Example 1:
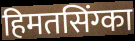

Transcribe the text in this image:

हिमतसिंग्का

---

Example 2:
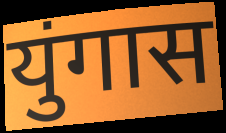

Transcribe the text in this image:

युंगास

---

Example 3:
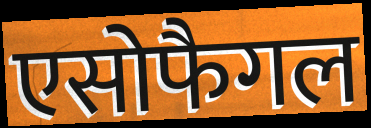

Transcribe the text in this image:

एसोफैगल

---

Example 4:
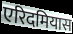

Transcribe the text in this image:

एरिदमियास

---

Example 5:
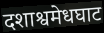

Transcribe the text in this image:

दशाश्वमेधघाट